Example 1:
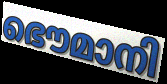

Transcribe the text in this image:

ഭൌമാനി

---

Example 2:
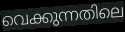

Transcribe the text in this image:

വെക്കുന്നതിലെ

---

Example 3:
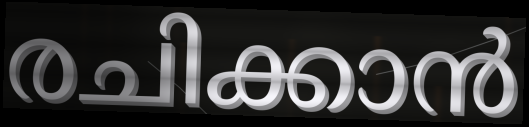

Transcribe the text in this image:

രചിക്കാൻ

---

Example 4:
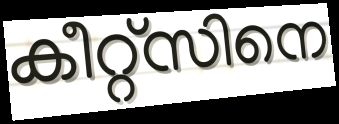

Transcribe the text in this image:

കീറ്റ്സിനെ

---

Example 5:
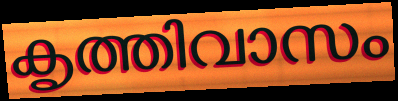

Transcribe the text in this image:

കൃത്തിവാസം